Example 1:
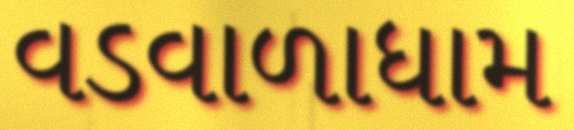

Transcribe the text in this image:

વડવાળાધામ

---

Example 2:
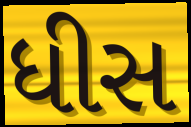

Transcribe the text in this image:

ધીસ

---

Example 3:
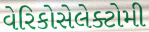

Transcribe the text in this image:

વેરિકોસેલેક્ટોમી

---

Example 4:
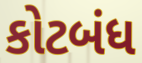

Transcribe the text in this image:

કોટબંધ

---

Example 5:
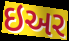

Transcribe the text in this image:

ઇઅર